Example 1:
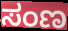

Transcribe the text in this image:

ಸಂಣ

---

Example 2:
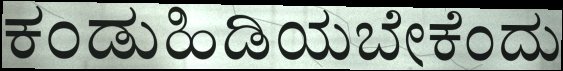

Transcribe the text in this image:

ಕಂಡುಹಿಡಿಯಬೇಕೆಂದು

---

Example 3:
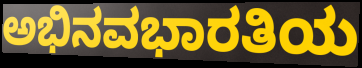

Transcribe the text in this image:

ಅಭಿನವಭಾರತಿಯ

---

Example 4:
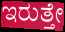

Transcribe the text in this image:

ಇರುತ್ತೇ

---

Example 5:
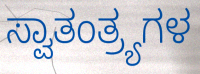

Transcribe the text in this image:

ಸ್ವಾತಂತ್ರ್ಯಗಳ